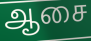
ஆசை